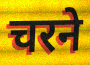
चरने